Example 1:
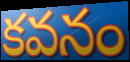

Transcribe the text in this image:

కవనం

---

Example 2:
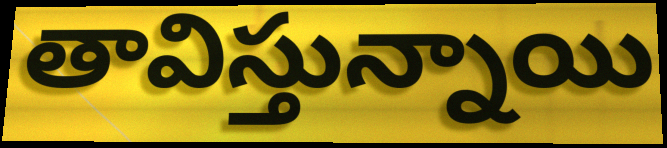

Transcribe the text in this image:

తావిస్తున్నాయి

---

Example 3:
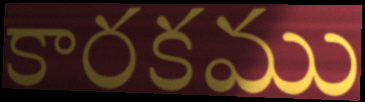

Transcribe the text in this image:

కారకము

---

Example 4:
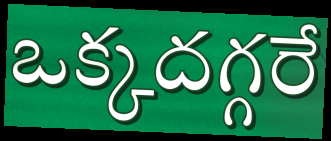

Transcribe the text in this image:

ఒక్కదగ్గరే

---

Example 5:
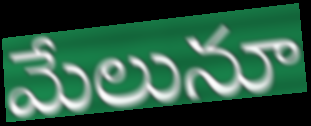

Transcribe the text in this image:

మేలునూ